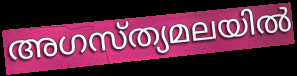
അഗസ്ത്യമലയിൽ